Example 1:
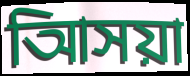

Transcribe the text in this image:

আিসয়া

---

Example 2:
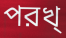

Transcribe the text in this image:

পরখ্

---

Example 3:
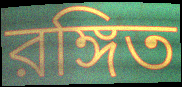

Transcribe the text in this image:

রঙ্গিত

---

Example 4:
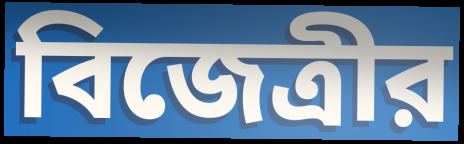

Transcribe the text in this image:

বিজেত্রীর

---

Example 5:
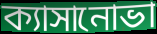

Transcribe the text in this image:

ক্যাসানোভা